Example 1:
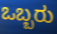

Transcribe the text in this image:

ಒಬ್ಬರು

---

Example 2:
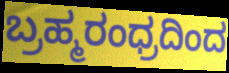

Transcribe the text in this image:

ಬ್ರಹ್ಮರಂಧ್ರದಿಂದ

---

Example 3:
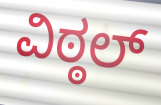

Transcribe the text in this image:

ವಿಠ್ಠಲ್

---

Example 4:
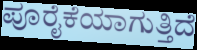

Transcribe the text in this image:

ಪೂರೈಕೆಯಾಗುತ್ತಿದೆ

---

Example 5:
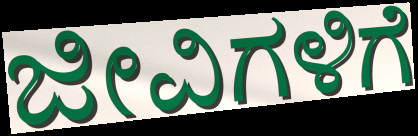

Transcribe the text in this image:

ಜೀವಿಗಳಿಗೆ